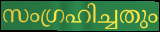
സംഗ്രഹിച്ചതും